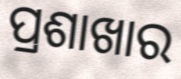
ପ୍ରଶାଖାର